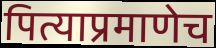
पित्याप्रमाणेच